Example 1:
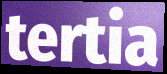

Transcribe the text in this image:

tertia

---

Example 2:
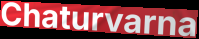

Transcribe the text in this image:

Chaturvarna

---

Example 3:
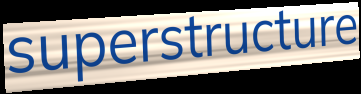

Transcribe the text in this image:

superstructure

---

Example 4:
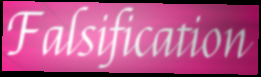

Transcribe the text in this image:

Falsification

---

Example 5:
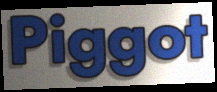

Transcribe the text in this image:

Piggot